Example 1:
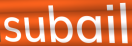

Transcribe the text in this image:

subail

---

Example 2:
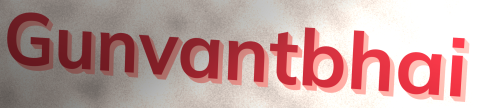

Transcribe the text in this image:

Gunvantbhai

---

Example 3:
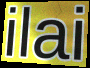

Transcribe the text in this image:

ilai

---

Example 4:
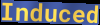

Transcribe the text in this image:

Induced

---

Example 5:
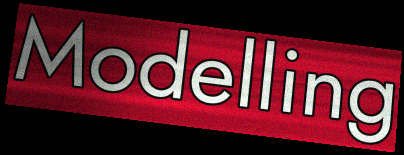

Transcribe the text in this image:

Modelling